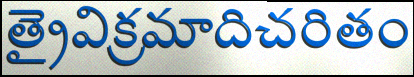
త్రైవిక్రమాదిచరితం